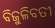
ବିଜୁଳିବତୀ